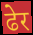
ढेर